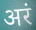
अरं